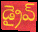
డ్రైవ్